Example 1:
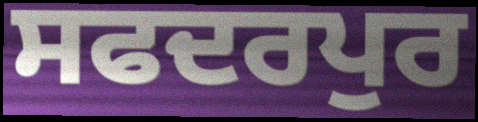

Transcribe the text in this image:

ਸਫਦਰਪੁਰ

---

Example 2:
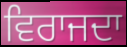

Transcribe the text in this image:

ਵਿਰਾਜਦਾ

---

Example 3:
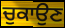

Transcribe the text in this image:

ਚੁਕਾਉਣ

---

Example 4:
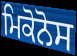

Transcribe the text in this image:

ਮਿਕੋਨੋਸ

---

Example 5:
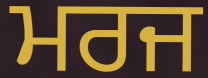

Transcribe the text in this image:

ਮਰਜ